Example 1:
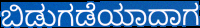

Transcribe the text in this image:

ಬಿಡುಗಡೆಯಾದಾಗ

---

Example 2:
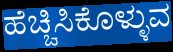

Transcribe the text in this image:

ಹೆಚ್ಚಿಸಿಕೊಳ್ಳುವ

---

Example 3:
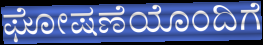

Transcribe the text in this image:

ಘೋಷಣೆಯೊಂದಿಗೆ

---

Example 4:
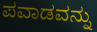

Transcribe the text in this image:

ಪವಾಡವನ್ನು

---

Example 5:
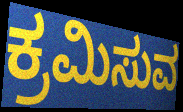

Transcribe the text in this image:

ಕ್ರಮಿಸುವ